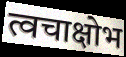
त्वचाक्षोभ